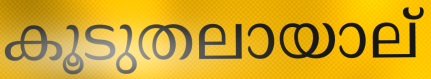
കൂടുതലായാല്